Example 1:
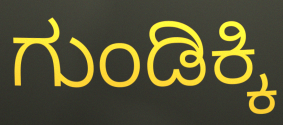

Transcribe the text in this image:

ಗುಂಡಿಕ್ಕಿ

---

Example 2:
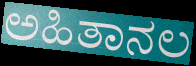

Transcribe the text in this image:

ಅಹಿತಾನಲ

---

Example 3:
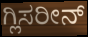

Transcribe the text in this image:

ಗ್ಲಿಸರೀನ್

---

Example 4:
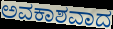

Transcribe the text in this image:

ಅವಕಾಶವಾದ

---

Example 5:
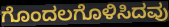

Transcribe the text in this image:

ಗೊಂದಲಗೊಳಿಸಿದವು